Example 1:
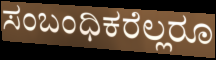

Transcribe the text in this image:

ಸಂಬಂಧಿಕರೆಲ್ಲರೂ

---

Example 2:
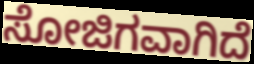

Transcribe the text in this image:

ಸೋಜಿಗವಾಗಿದೆ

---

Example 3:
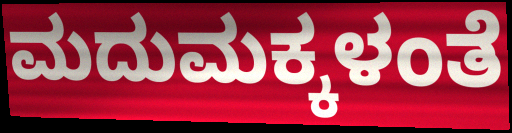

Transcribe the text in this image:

ಮದುಮಕ್ಕಳಂತೆ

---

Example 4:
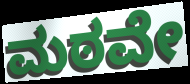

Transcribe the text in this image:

ಮಠವೇ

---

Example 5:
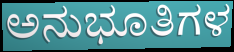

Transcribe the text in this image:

ಅನುಭೂತಿಗಳ